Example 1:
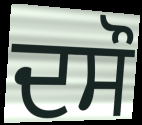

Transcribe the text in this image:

ਦਸੌ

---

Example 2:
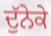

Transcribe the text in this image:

ਦੁੱਨੇਕੇ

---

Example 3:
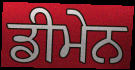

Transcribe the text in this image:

ਡੀਮੇਨ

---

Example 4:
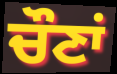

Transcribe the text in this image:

ਚੌਣਾਂ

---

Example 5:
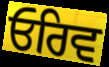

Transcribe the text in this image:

ਓਰਿਵ